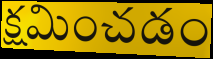
క్షమించడం